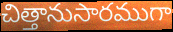
చిత్తానుసారముగా